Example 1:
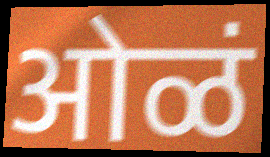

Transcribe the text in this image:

ओळं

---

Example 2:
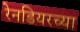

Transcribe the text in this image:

रेनडियरच्या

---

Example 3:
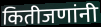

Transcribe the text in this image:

कितीजणांनी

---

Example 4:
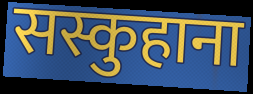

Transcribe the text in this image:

सस्कुहाना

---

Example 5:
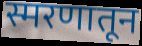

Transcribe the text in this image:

स्मरणातून